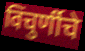
विंचुर्णीचे